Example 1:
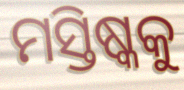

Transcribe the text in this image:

ମସ୍ତିଷ୍କକୁ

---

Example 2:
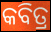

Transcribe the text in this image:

କବିତ୍ର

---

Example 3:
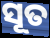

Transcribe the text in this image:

ସୂତ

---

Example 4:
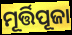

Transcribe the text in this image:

ମୂର୍ତ୍ତିପୂଜା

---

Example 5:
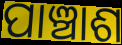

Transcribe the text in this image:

ପାଞ୍ଚାଶ